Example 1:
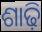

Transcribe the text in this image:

ଶାଢ଼ି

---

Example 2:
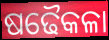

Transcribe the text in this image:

ଷଢୈକଳା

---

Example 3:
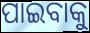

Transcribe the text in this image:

ପାଇବାକୁ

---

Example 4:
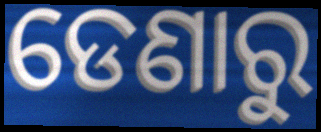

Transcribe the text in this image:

ଡେଣାରୁ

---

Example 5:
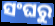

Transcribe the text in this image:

ସଂଘରୁ